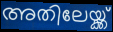
അതിലേയ്ക്ക്